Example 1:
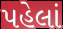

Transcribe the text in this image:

પહેલાં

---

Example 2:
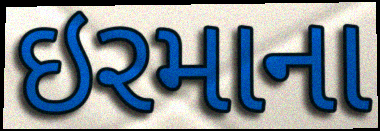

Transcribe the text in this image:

ઇરમાના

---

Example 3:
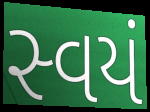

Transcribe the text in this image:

સ્વયં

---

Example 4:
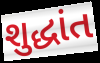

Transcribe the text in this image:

શુદ્ધાંત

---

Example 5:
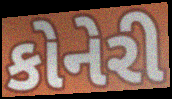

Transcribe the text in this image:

કોનેરી